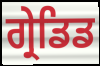
ਗ੍ਰੇਡਿਡ